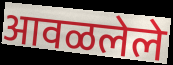
आवळलेले